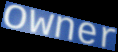
owner